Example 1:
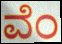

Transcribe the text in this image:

ವೆಂ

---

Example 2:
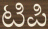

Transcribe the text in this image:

ಟಿಪಿ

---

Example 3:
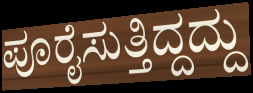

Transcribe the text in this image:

ಪೂರೈಸುತ್ತಿದ್ದದ್ದು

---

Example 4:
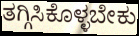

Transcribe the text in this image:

ತಗ್ಗಿಸಿಕೊಳ್ಳಬೇಕು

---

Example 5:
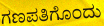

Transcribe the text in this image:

ಗಣಪತಿಗೊಂದು